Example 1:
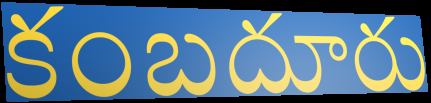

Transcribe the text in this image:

కంబదూరు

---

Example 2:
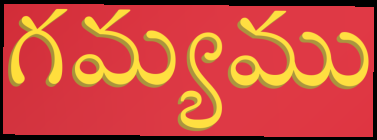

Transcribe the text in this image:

గమ్యము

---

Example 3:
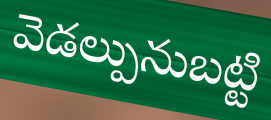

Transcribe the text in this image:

వెడల్పునుబట్టి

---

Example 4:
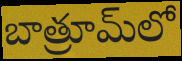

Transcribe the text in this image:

బాత్రూమ్‌లో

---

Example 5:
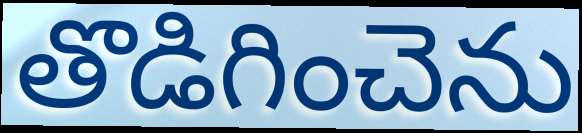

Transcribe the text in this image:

తొడిగించెను